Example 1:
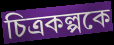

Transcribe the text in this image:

চিত্রকল্পকে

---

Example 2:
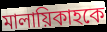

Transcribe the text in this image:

মালায়িকাহকে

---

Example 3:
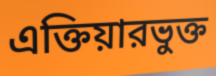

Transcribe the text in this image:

এক্তিয়ারভুক্ত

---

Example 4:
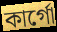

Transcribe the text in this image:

কার্গো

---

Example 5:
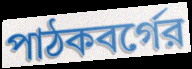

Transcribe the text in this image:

পাঠকবর্গের